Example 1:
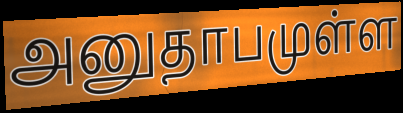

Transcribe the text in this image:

அனுதாபமுள்ள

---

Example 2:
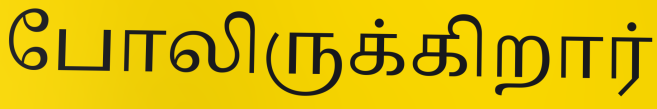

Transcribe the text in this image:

போலிருக்கிறார்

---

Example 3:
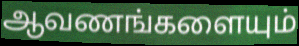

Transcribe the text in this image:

ஆவணங்களையும்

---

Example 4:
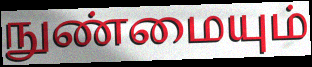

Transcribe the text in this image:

நுண்மையும்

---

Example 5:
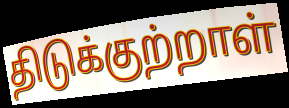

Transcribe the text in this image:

திடுக்குற்றாள்